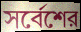
সর্বেশের